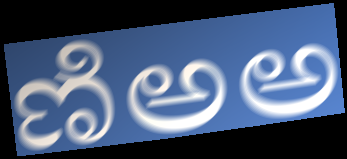
ణిఅఅ